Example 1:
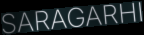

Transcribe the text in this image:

SARAGARHI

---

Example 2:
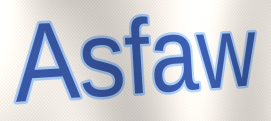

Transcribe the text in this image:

Asfaw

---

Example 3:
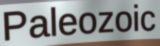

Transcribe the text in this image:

Paleozoic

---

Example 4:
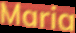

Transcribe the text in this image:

Maria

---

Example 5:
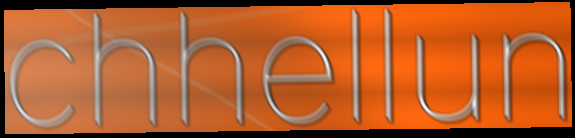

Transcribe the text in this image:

chhellun